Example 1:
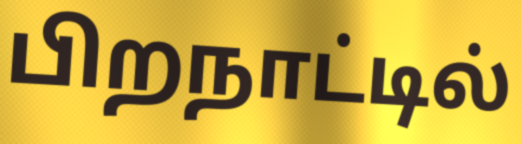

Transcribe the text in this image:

பிறநாட்டில்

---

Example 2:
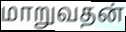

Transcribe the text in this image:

மாறுவதன்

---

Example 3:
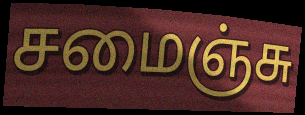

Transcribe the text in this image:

சமைஞ்சு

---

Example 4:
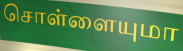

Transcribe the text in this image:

சொள்ளையுமா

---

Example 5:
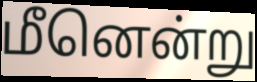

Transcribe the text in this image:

மீனென்று